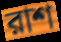
রাশ